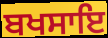
ਬਖਸਾਇ